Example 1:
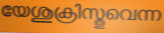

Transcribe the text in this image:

യേശുക്രിസ്തുവെന്ന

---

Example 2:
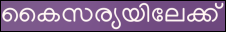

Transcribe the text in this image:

കൈസര്യയിലേക്ക്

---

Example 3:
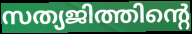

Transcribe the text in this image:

സത്യജിത്തിന്റെ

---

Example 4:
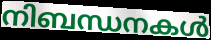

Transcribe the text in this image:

നിബന്ധനകൾ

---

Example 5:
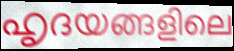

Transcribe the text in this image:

ഹൃദയങ്ങളിലെ